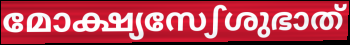
മോക്ഷ്യസേഽശുഭാത്